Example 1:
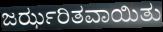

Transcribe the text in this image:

ಜರ್ಝರಿತವಾಯಿತು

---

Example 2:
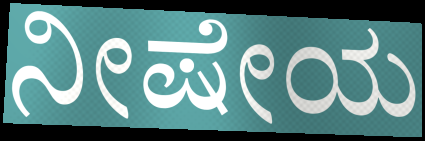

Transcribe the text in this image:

ನೀಷೇಯ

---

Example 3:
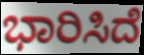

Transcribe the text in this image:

ಭಾರಿಸಿದೆ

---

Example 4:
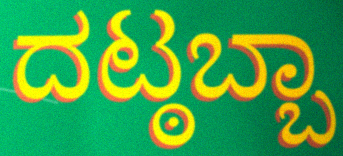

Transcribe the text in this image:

ದಟ್ಠಬ್ಬಾ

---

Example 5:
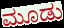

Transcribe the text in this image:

ಮೂಡು